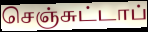
செஞ்சுட்டாப்